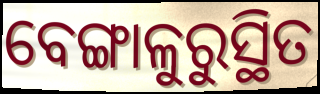
ବେଙ୍ଗାଳୁରୁସ୍ଥିତ